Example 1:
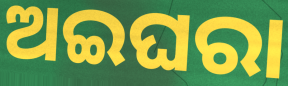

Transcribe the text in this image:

ଅଇଘରା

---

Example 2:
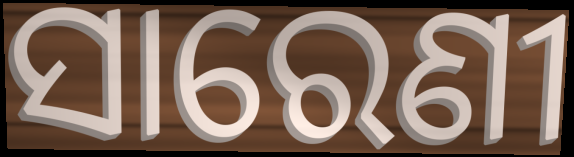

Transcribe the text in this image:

ସାରେଣୀ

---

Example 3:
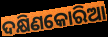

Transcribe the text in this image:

ଦକ୍ଷିଣକୋରିଆ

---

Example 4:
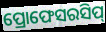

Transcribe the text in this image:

ପ୍ରୋଫେସରସିପ୍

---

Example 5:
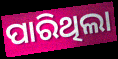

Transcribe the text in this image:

ପାରିଥିଲା